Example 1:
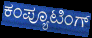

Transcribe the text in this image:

ಕಂಪ್ಯೂಟಿಂಗ್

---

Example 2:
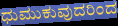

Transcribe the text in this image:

ಧುಮುಕುವುದರಿಂದ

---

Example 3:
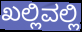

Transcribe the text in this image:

ಖಲ್ಲಿವಲ್ಲಿ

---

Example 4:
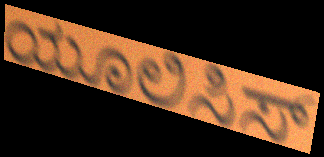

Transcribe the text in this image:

ಯೂಲಿಸಿಸ್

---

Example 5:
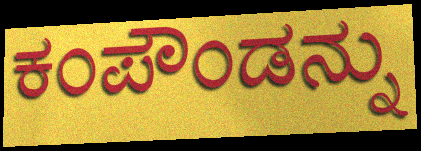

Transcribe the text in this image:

ಕಂಪೌಂಡನ್ನು